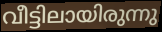
വീട്ടിലായിരുന്നു